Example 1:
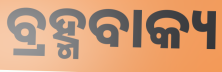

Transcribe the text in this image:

ବ୍ରହ୍ମବାକ୍ୟ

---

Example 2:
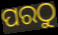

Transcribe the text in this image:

ପରଠୁ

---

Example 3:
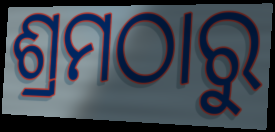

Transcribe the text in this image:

ଶ୍ରମଠାରୁ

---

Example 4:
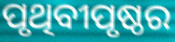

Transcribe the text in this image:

ପୃଥିବୀପୃଷ୍ଠର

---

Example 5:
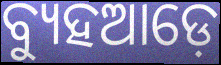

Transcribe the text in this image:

ବ୍ୟୁହଆଡ଼େ